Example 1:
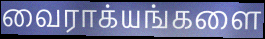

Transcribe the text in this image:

வைராக்யங்களை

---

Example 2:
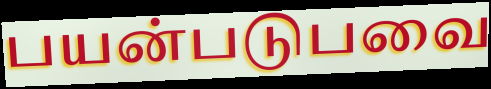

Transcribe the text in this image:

பயன்படுபவை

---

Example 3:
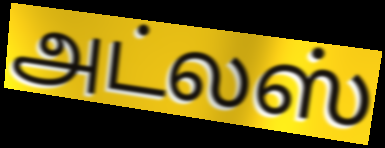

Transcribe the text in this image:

அட்லஸ்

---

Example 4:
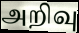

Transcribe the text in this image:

அறிவு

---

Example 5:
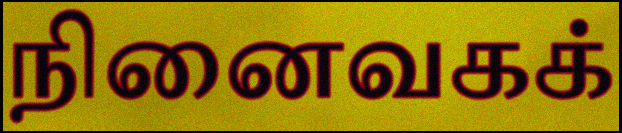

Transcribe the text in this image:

நினைவகக்